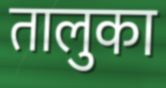
तालुका